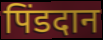
पिंडदान